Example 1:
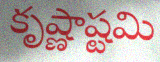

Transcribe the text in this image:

కృష్ణాష్టమి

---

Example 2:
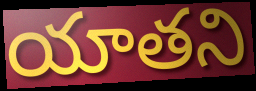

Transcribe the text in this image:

యాతని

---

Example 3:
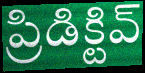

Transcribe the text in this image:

ప్రిడిక్టివ్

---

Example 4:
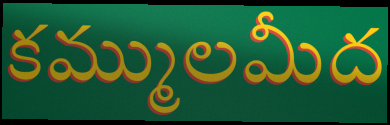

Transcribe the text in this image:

కమ్ములమీద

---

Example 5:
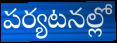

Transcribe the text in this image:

పర్యటనల్లో